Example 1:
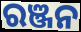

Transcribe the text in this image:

ରଞ୍ଜନ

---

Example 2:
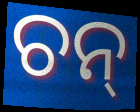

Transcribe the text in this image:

ଚନ୍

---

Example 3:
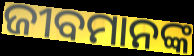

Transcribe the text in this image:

ଜୀବମାନଙ୍କ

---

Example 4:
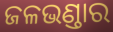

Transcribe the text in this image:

ଜଳଭଣ୍ଡାର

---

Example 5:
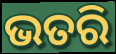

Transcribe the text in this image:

ଭତରି